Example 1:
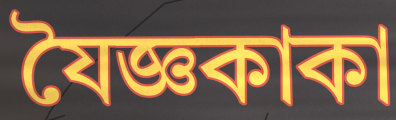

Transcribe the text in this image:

যৈজ্ঞকাকা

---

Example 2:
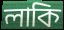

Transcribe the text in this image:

লাকি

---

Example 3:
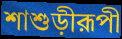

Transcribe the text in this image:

শাশুড়ীরূপী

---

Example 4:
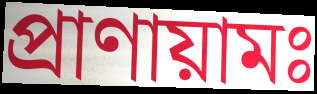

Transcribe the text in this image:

প্রাণায়ামঃ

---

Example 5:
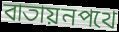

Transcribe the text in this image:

বাতায়নপথে